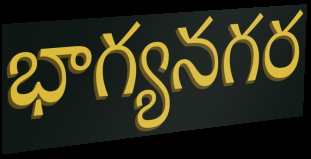
భాగ్యనగర